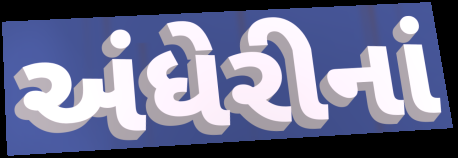
અંધેરીનાં